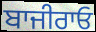
ਬਾਜੀਰਾਓ